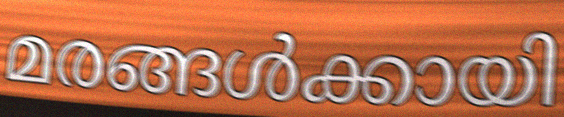
മരങ്ങൾക്കായി